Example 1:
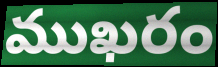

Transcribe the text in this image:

ముఖరం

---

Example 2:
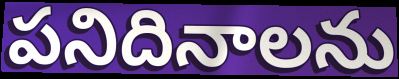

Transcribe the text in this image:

పనిదినాలను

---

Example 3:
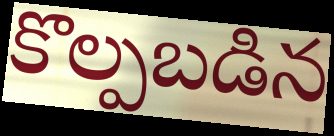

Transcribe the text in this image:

కొల్పబడిన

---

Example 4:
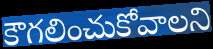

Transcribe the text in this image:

కౌగలించుకోవాలని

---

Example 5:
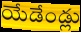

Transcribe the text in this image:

యేడేండ్లు